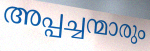
അപ്പച്ചന്മാരും